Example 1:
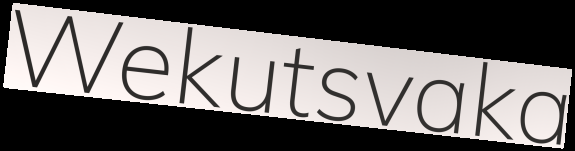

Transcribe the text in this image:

Wekutsvaka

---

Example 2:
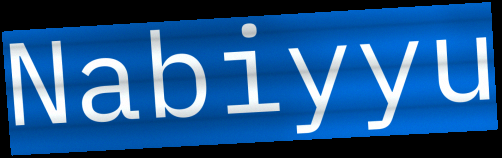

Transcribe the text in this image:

Nabiyyu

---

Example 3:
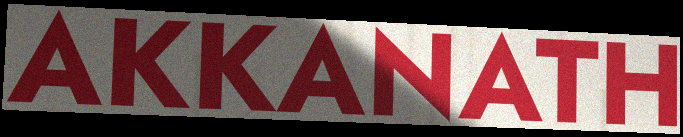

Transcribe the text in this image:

AKKANATH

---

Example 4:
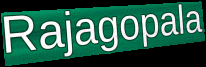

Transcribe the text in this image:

Rajagopala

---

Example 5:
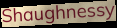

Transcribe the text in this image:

Shaughnessy